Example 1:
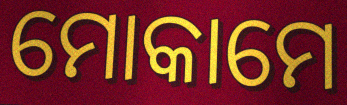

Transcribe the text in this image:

ମୋକାମେ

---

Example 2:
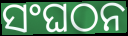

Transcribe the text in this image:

ସଂଘଠନ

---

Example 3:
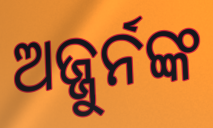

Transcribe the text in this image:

ଅଜ୍ଜୁର୍ନଙ୍କ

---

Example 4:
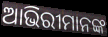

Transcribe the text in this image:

ଆଭିରୀମାନଙ୍କ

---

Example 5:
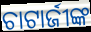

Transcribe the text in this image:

ଚାଟାର୍ଜୀଙ୍କ